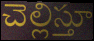
చెల్లిస్తూ